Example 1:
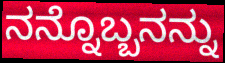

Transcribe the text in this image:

ನನ್ನೊಬ್ಬನನ್ನು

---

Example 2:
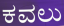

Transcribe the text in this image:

ಕವಲು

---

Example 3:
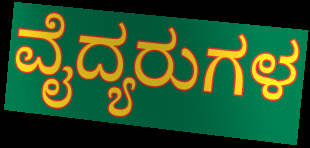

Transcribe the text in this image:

ವೈದ್ಯರುಗಳ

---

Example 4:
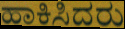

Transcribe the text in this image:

ಹಾಕಿಸಿದರು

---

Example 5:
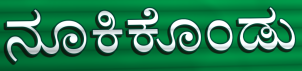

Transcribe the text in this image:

ನೂಕಿಕೊಂಡು